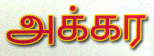
அக்கர